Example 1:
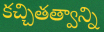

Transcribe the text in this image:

కచ్చితత్వాన్ని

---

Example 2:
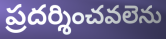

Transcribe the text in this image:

ప్రదర్శించవలెను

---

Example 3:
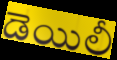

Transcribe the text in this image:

డెయిలీ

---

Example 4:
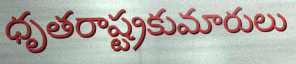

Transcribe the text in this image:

ధృతరాష్ట్రకుమారులు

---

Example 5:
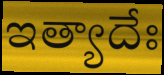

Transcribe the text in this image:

ఇత్యాదేః